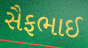
સૈફભાઈ